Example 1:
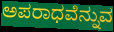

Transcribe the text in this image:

ಅಪರಾಧವೆನ್ನುವ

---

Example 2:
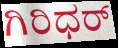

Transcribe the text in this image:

ಗಿರಿಧರ್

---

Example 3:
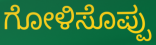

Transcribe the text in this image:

ಗೋಳಿಸೊಪ್ಪು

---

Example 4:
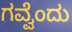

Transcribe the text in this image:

ಗವ್ವೆಂದು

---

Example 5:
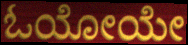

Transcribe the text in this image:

ಓಯೋಯೇ